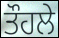
ਤੌਹਲੇ